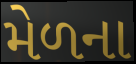
મેળના